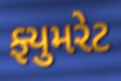
ફ્યુમરેટ